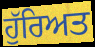
ਹੁੱਰਿਅਤ